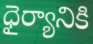
ధైర్యానికి